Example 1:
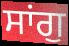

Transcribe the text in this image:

ਸਾਂਗੁ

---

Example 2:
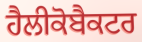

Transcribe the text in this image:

ਹੈਲੀਕੋਬੈਕਟਰ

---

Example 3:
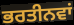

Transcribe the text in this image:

ਭਰਤੀਨਵਾਂ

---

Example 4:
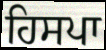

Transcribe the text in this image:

ਹਿਸਪਾ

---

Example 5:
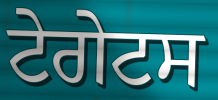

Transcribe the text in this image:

ਟੇਗੇਟਸ